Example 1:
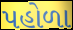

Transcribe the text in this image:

પહોળા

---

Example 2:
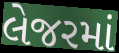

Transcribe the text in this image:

લેજરમાં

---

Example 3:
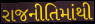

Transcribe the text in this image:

રાજનીતિમાંથી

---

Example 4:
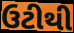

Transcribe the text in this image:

ઉટીથી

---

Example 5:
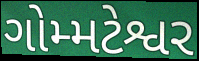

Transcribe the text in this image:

ગોમ્મટેશ્વર